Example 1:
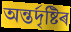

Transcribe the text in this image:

অন্তৰ্দৃষ্টিৰ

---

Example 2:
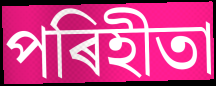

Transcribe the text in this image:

পৰিহীতা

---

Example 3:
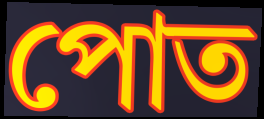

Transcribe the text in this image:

পোত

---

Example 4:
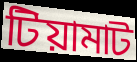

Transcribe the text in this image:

টিয়ামাট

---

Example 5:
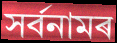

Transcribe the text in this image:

সৰ্বনামৰ